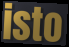
isto